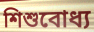
শিশুবোধ্য